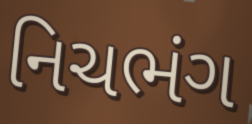
નિચભંગ